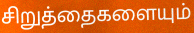
சிறுத்தைகளையும்